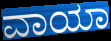
ವಾಯಾ